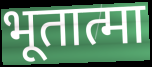
भूतात्मा